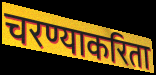
चरण्याकरिता